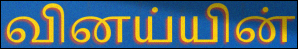
வினய்யின்